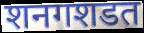
शनगशडत